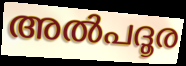
അൽപദൂര